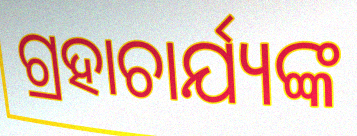
ଗ୍ରହାଚାର୍ଯ୍ୟଙ୍କ